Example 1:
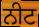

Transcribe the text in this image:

ਨੀਟ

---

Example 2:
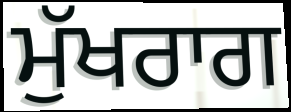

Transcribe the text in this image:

ਮੁੱਖਰਾਗ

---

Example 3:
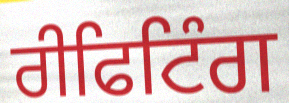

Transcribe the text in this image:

ਰੀਫਿਟਿੰਗ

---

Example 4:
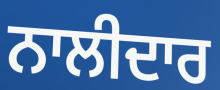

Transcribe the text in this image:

ਨਾਲੀਦਾਰ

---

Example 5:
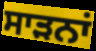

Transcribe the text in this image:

ਸਾੜਨਾਂ